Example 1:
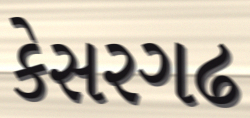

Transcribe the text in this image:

કેસરગઢ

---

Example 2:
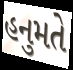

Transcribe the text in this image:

હનુમતે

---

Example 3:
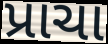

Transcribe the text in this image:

પ્રાચા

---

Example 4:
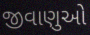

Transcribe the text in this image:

જીવાણુઓ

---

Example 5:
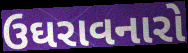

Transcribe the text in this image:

ઉઘરાવનારો